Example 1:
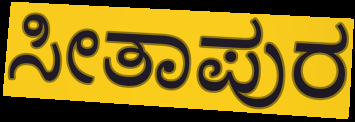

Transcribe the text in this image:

ಸೀತಾಪುರ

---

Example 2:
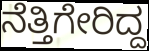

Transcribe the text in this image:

ನೆತ್ತಿಗೇರಿದ್ದ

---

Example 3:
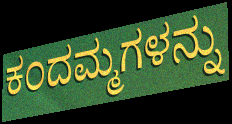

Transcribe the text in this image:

ಕಂದಮ್ಮಗಳನ್ನು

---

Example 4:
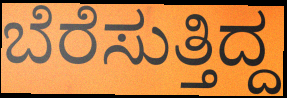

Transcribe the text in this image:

ಬೆರೆಸುತ್ತಿದ್ದ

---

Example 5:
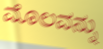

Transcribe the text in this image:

ಮೊಲವನ್ನು